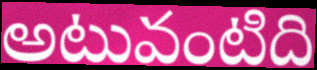
అటువంటిది